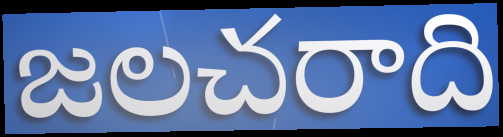
జలచరాది